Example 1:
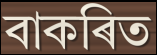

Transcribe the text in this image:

বাকৰিত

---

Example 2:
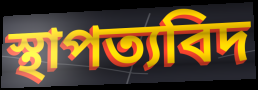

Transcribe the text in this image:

স্থাপত্যবিদ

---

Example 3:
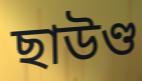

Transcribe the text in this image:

ছাউণ্ড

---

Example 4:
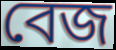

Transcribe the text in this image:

বেজ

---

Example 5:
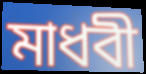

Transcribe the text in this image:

মাধবী